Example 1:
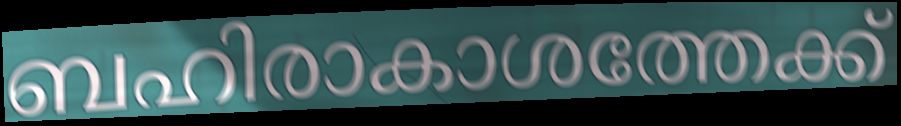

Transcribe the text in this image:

ബഹിരാകാശത്തേക്ക്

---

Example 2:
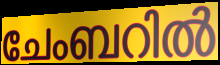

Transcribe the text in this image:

ചേംബറിൽ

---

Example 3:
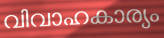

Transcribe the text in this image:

വിവാഹകാര്യം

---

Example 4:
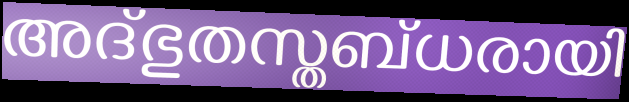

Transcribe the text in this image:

അദ്ഭുതസ്തബ്ധരായി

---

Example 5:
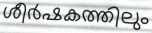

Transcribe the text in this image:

ശീർഷകത്തിലും